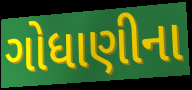
ગોધાણીના